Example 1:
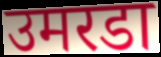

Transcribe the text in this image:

उमरडा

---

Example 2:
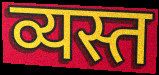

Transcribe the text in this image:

व्यस्त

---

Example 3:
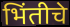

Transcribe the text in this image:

भिंतीचे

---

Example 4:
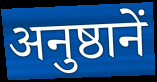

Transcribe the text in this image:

अनुष्ठानें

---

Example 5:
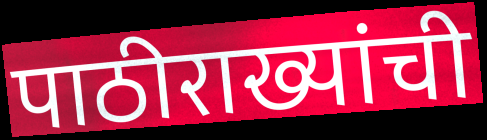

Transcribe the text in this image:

पाठीराख्यांची